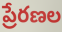
ప్రేరణల